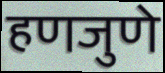
हणजुणे